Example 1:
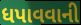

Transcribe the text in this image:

ધપાવવાની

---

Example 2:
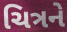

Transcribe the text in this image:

ચિત્રને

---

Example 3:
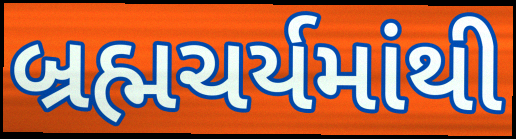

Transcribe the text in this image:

બ્રહ્મચર્યમાંથી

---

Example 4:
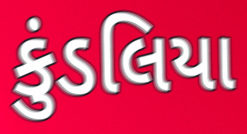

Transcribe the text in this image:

કુંડલિયા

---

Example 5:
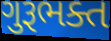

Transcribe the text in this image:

ગુરૂભક્ત